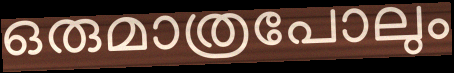
ഒരുമാത്രപോലും